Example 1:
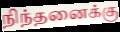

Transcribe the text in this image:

நிந்தனைக்கு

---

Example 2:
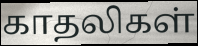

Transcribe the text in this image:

காதலிகள்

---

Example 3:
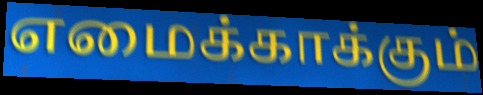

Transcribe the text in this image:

எமைக்காக்கும்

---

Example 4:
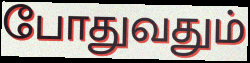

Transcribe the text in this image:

போதுவதும்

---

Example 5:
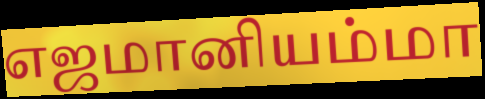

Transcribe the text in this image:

எஜமானியம்மா